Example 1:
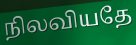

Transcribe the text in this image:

நிலவியதே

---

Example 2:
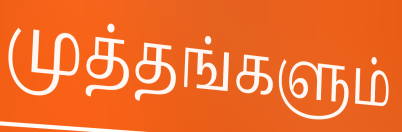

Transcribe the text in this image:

முத்தங்களும்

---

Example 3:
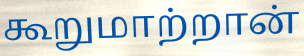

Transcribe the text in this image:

கூறுமாற்றான்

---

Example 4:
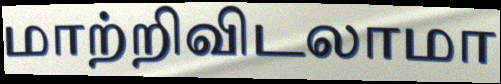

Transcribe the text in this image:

மாற்றிவிடலாமா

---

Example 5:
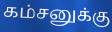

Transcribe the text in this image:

கம்சனுக்கு